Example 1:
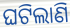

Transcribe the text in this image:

ଘଟିଲାଣି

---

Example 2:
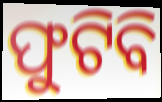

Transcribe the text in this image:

ଫୁଟିବି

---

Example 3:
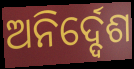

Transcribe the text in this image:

ଅନିର୍ଦ୍ଦେଶ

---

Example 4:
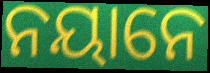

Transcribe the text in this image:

ନୟାନେ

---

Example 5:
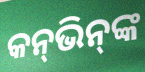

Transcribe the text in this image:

କନ୍‌ଭିନ୍‌ଙ୍କ